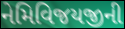
નેમિવિજયજીની